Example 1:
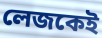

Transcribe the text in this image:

লেজকেই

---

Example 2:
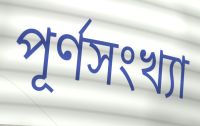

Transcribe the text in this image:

পূর্ণসংখ্যা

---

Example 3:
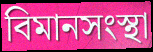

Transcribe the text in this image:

বিমানসংস্থা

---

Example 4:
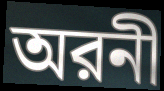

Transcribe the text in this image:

অরনী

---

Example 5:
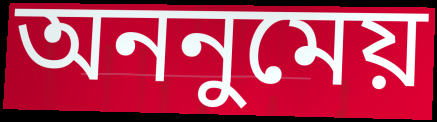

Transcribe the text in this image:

অননুমেয়